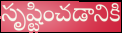
సృష్టించడానికి